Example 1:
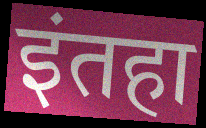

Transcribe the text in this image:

इंतहा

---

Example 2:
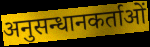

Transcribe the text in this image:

अनुसन्धानकर्ताओं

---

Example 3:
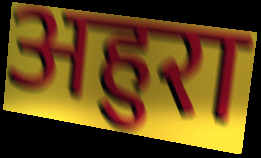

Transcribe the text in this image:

अहुरा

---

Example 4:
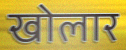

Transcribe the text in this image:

खोलार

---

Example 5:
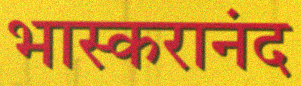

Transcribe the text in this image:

भास्करानंद